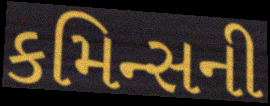
કમિન્સની